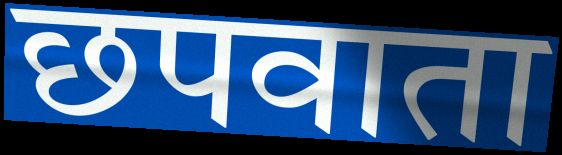
छपवाता